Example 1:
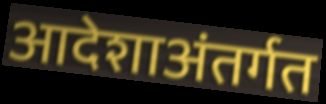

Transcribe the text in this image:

आदेशाअंतर्गत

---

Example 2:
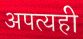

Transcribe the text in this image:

अपत्यही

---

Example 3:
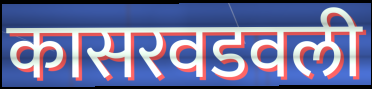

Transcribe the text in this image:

कासरवडवली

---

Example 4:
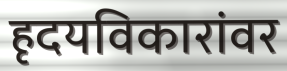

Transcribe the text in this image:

हृदयविकारांवर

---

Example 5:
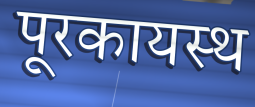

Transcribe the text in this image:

पूरकायस्थ